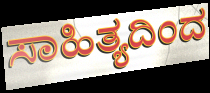
ಸಾಹಿತ್ಯದಿಂದ